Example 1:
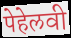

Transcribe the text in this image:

पेहेलवी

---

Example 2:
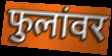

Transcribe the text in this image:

फुलांवर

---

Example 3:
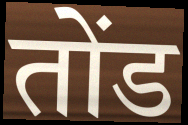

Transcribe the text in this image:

तोंड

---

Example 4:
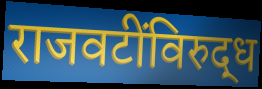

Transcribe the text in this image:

राजवटींविरुद्ध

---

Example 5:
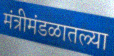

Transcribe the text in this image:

मंत्रीमंडळातल्या